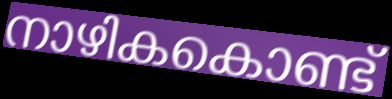
നാഴികകൊണ്ട്